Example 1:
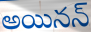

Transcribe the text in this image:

అయినన్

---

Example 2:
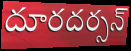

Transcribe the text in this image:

దూరదర్సన్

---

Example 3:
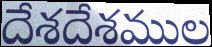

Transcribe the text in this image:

దేశదేశముల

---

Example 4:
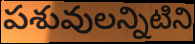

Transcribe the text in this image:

పశువులన్నిటిని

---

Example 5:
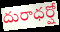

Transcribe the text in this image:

దురాధర్షో